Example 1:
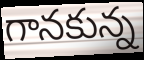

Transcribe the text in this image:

గానకున్న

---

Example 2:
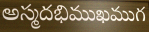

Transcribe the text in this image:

అస్మదభిముఖముగ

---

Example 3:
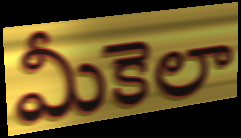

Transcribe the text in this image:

మీకెలా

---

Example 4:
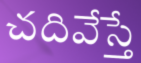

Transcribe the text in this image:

చదివేస్తే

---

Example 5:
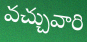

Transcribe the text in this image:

వచ్చువారి